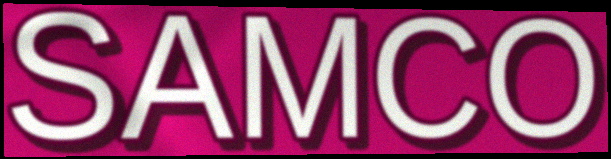
SAMCO